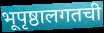
भूपृष्ठालगतची